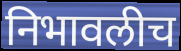
निभावलीच